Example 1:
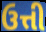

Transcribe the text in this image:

ઉત્તી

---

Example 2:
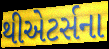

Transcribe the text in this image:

થીએટર્સના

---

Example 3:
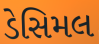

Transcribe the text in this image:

ડેસિમલ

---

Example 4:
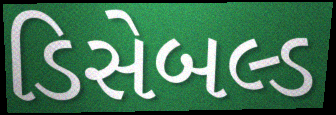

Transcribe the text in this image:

ડિસેબલ્ડ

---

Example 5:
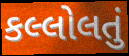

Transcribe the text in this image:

કલ્લોલતું